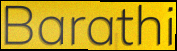
Barathi